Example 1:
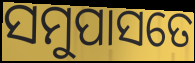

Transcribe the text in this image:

ସମୁପାସତେ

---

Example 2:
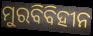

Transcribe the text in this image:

ମୁରବିବିହୀନ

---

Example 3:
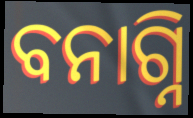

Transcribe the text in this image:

ବନାଗ୍ନି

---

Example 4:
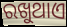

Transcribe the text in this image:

ରଖୁଥାଏ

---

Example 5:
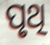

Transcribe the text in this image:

ପୃଥି